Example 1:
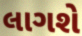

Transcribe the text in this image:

લાગશે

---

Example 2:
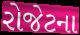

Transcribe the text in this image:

રોજેટના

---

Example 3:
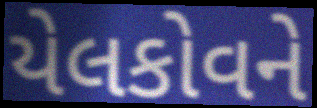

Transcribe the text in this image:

યેલકોવને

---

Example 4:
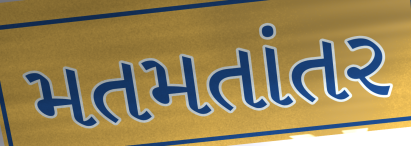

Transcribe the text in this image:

મતમતાંતર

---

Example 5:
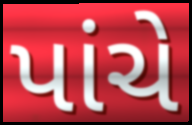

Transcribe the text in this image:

પાંચે